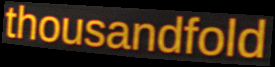
thousandfold